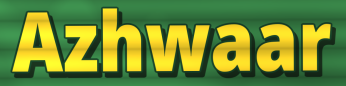
Azhwaar